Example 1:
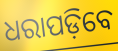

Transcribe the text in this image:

ଧରାପଡ଼ିବେ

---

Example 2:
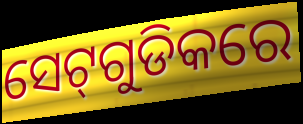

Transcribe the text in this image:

ସେଟ୍‌ଗୁଡିକରେ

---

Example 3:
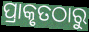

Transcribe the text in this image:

ପ୍ରାକୃତଠାରୁ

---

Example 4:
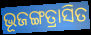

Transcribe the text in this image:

ଭୂଜଙ୍ଗତ୍ରାସିତ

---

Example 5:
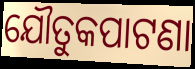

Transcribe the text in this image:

ଯୌତୁକପାଟଣା